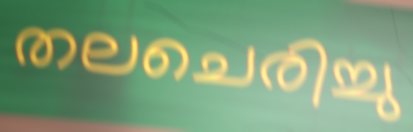
തലചെരിച്ചു